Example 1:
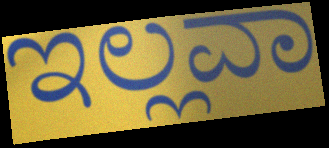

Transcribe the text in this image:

ಇಲ್ಲವಾ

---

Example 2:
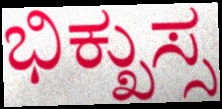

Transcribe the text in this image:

ಭಿಕ್ಖುಸ್ಸ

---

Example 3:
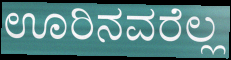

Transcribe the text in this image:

ಊರಿನವರೆಲ್ಲ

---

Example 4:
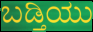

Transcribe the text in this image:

ಬಡ್ತಿಯು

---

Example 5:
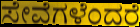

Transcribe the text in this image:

ಸೇವೆಗಳೆಂದರೆ